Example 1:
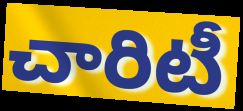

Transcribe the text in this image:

చారిటీ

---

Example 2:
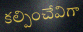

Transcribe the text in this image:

కల్పించేవిగా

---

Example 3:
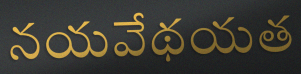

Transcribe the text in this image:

నయవేథయత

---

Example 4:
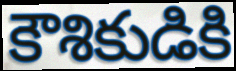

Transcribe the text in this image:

కౌశికుడికి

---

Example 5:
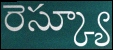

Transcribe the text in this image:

రెస్క్యూ